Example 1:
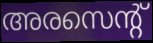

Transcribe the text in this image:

അരസെന്റ്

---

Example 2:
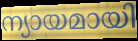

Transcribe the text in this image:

ന്യായമായി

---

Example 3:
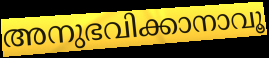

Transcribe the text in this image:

അനുഭവിക്കാനാവൂ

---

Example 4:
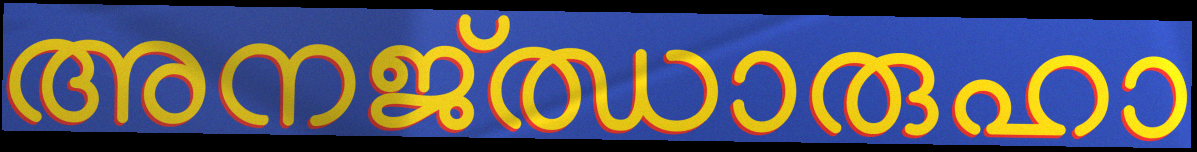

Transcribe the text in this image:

അനജ്ഝാരുഹാ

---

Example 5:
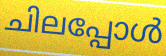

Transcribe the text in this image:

ചിലപ്പോൾ